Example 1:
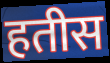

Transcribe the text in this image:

हतीस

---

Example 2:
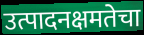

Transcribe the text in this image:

उत्पादनक्षमतेचा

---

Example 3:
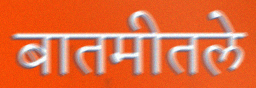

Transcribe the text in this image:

बातमीतले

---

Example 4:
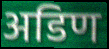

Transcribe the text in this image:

अडिण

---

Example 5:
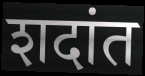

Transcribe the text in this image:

शदांत